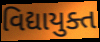
વિદ્યાયુક્ત